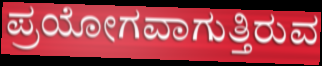
ಪ್ರಯೋಗವಾಗುತ್ತಿರುವ